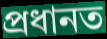
প্রধানত